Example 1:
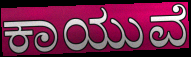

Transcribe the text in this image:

ಕಾಯುವೆ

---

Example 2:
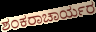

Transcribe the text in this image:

ಶಂಕರಾಚಾರ್ಯರ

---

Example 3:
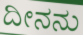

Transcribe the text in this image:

ದೀನನು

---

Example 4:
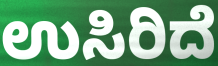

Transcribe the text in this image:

ಉಸಿರಿದೆ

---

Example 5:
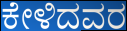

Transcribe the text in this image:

ಕೇಳಿದವರ